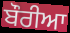
ਬੌਰੀਆ